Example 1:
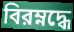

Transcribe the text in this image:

বিরম্নদ্ধে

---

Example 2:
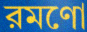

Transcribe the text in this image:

রমণো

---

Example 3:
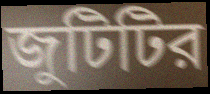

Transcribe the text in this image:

জুটিটির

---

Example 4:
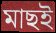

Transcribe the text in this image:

মাছই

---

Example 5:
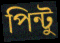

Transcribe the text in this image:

পিন্টু